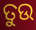
ତୁଉ